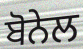
ਬੋਨੇਲ